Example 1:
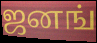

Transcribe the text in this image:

ஜனங்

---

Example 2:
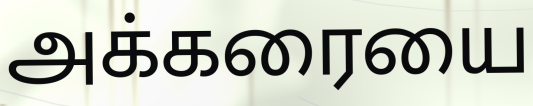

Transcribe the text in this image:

அக்கரையை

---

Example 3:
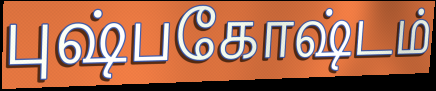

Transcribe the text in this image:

புஷ்பகோஷ்டம்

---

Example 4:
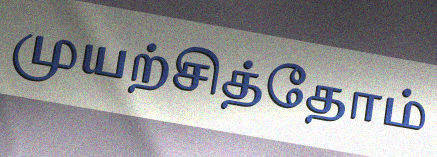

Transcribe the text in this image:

முயற்சித்தோம்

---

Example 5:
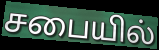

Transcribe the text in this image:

சபையில்